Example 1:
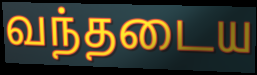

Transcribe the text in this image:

வந்தடைய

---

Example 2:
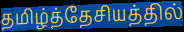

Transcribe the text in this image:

தமிழ்த்தேசியத்தில்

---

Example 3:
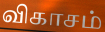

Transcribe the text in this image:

விகாசம்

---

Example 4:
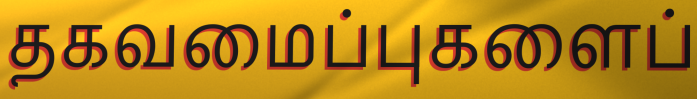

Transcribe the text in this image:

தகவமைப்புகளைப்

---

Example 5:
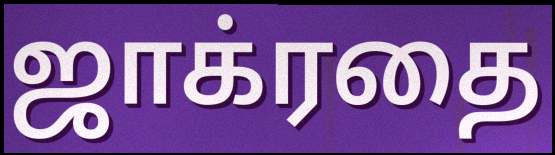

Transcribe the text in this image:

ஜாக்ரதை